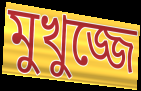
মুখুজ্জে